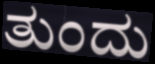
ತುಂದು